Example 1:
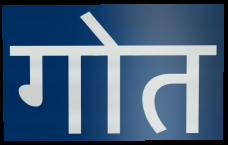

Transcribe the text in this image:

गोत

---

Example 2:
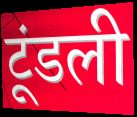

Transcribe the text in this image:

टूंडली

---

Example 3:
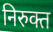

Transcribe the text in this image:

निरुक्त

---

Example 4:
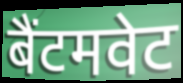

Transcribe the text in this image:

बैंटमवेट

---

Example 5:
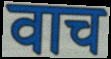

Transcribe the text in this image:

वाच